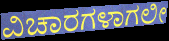
ವಿಚಾರಗಳಾಗಲೀ